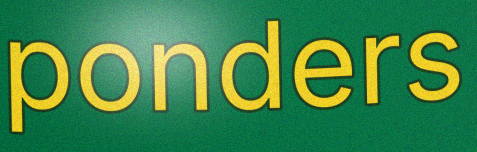
ponders